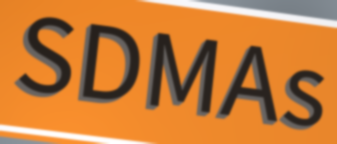
SDMAs